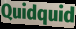
Quidquid